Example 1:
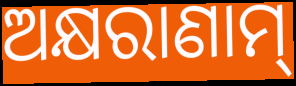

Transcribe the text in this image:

ଅକ୍ଷରାଣାମ୍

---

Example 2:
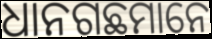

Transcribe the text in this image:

ଧାନଗଛମାନେ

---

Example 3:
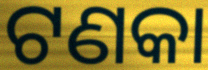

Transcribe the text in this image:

ଟଣକା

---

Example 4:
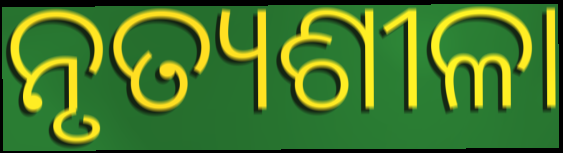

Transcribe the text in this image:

ନୃତ୍ୟଶୀଳା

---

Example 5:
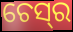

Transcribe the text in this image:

ଚେସ୍‌ର